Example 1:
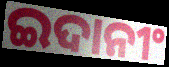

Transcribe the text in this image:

ଇଦାନୀଂ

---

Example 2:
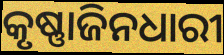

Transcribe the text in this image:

କୃଷ୍ଣାଜିନଧାରୀ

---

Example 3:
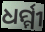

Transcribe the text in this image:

ଧର୍ମ୍ମୀ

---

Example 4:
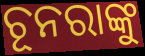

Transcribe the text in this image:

ଚୂନରାଙ୍କୁ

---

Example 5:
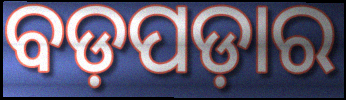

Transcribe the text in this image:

ବଡ଼ପଡ଼ାର